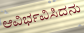
ಆವಿರ್ಭವಿಸಿದನು